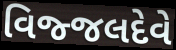
વિજ્જલદેવે